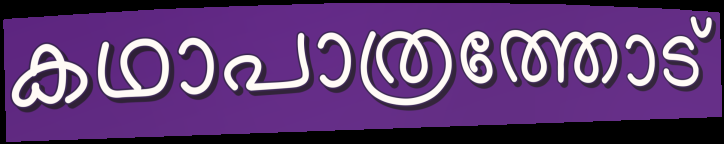
കഥാപാത്രത്തോട്